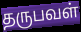
தருபவள்